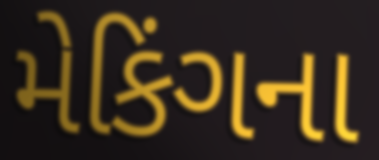
મેકિંગના